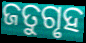
ଜତୁଗୃହ